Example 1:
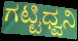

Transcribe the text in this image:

ಗಟ್ಟಿಧ್ವನಿ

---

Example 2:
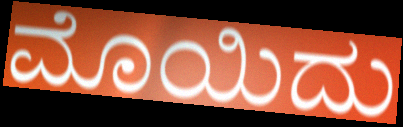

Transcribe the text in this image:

ಮೊಯಿದು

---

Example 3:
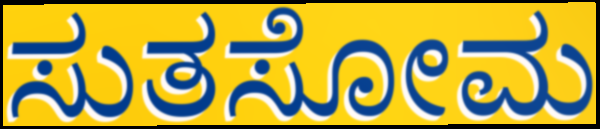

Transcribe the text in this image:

ಸುತಸೋಮ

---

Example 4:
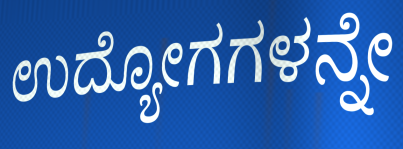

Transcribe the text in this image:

ಉದ್ಯೋಗಗಳನ್ನೇ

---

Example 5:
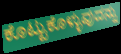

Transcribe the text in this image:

ಕೊಟ್ಟುಕೊಳ್ಳುವುದನ್ನು